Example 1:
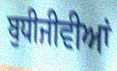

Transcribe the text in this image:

ਬੁਧੀਜੀਵੀਆਂ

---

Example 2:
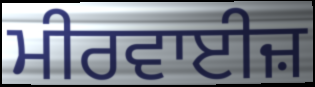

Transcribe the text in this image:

ਮੀਰਵਾਈਜ਼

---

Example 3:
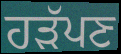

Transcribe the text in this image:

ਹੜੱਪਣ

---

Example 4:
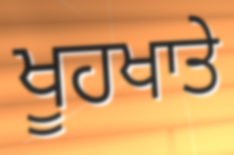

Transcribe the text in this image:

ਖੂਹਖਾਤੇ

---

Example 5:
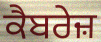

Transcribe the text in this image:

ਕੈਬਰੇਜ਼